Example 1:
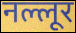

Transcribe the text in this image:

नल्लूर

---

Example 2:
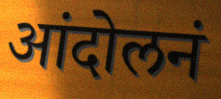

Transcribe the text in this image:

आंदोलनं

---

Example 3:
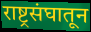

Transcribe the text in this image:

राष्ट्रसंघातून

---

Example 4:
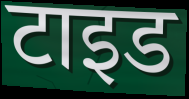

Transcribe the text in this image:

टाइड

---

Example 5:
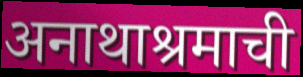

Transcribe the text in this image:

अनाथाश्रमाची